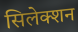
सिलेक्शन